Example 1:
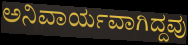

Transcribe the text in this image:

ಅನಿವಾರ್ಯವಾಗಿದ್ದವು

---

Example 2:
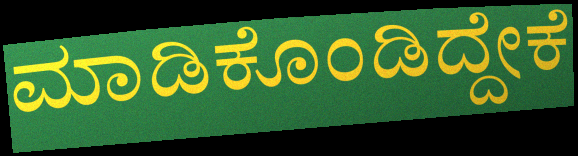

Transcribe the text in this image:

ಮಾಡಿಕೊಂಡಿದ್ದೇಕೆ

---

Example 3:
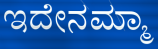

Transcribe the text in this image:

ಇದೇನಮ್ಮಾ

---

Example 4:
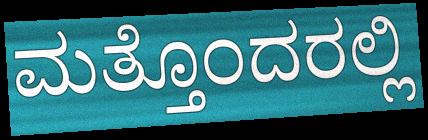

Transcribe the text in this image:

ಮತ್ತೊಂದರಲ್ಲಿ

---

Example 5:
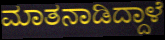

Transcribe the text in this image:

ಮಾತನಾಡಿದ್ದಾಳೆ